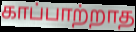
காப்பாற்றாத